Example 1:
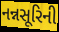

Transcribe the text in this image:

નન્નસૂરિની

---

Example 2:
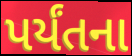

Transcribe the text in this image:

પર્યંતના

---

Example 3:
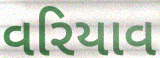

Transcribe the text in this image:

વરિયાવ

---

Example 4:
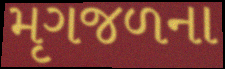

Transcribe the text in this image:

મૃગજળના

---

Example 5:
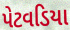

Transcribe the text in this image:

પેટવડિયા